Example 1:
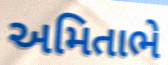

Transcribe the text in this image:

અમિતાભે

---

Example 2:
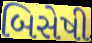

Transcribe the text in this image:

બિસેષી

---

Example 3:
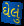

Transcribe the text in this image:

ઘેલું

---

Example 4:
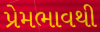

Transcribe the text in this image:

પ્રેમભાવથી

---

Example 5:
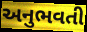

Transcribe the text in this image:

અનુભવતી